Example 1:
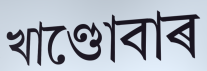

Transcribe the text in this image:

খাণ্ডোবাৰ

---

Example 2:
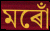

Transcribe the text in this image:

মৰোঁ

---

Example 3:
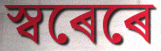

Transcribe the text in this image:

স্বৰেৰে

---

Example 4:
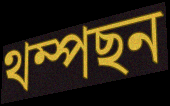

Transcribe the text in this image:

থম্পছন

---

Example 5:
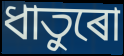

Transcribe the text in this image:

ধাতুৰো